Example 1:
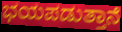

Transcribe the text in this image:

ಭಯಪಡುತ್ತಾನೆ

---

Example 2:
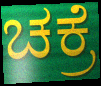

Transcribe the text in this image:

ಚಕ್ರೆ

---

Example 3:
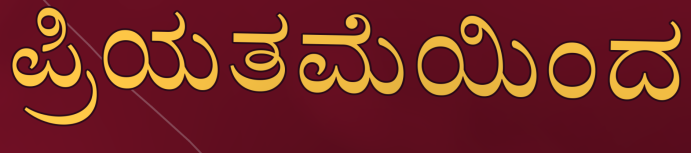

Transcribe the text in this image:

ಪ್ರಿಯತಮೆಯಿಂದ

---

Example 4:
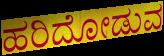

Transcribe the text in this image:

ಹರಿದೋಡುವ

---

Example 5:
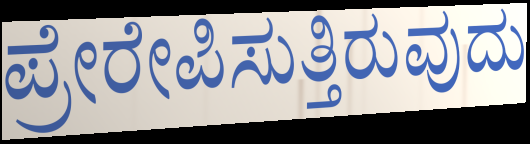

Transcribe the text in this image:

ಪ್ರೇರೇಪಿಸುತ್ತಿರುವುದು